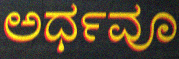
ಅರ್ಧವೂ